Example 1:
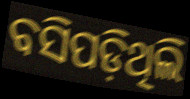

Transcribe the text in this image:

ବସିପଡ଼ିଥିଲି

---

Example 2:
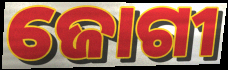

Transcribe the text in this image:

ଜୋଗୀ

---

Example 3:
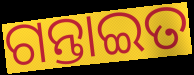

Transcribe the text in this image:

ଗନ୍ତାଇତ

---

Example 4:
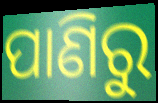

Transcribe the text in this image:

ପାଣିରୁ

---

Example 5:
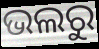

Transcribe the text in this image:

ଭଲରୁ